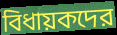
বিধায়কদের